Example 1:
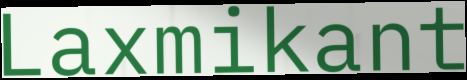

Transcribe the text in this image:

Laxmikant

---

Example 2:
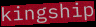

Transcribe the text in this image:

kingship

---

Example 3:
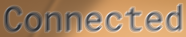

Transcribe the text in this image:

Connected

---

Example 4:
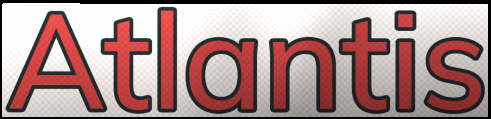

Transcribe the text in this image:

Atlantis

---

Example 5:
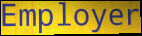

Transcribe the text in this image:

Employer